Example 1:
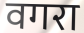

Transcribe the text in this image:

वगरा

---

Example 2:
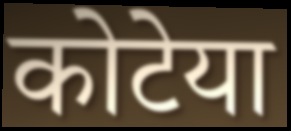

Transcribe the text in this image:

कोटेया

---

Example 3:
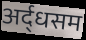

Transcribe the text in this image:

अर्द्धसम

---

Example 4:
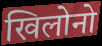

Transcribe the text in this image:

खिलोनो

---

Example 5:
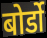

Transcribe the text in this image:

बोर्डो